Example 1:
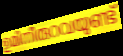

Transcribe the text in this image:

ഉമിനീരുറവയുണ്ട്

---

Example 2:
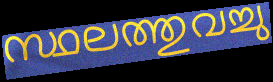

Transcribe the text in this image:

സ്ഥലത്തുവച്ചു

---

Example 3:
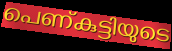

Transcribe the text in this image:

പെണ്കുട്ടിയുടെ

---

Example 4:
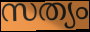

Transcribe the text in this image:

സത്യം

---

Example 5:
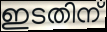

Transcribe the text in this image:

ഇടതിന്